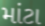
માંટા